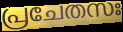
പ്രചേതസഃ